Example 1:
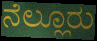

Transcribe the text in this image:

ನೆಲ್ಲೂರು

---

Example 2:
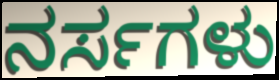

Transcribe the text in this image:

ನರ್ಸಗಳು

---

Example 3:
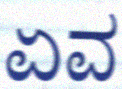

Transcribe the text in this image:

ಏವ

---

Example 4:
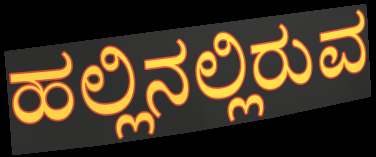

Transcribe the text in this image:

ಹಲ್ಲಿನಲ್ಲಿರುವ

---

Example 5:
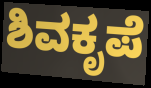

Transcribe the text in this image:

ಶಿವಕೃಪೆ